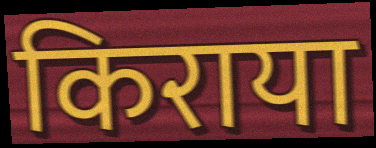
किराया